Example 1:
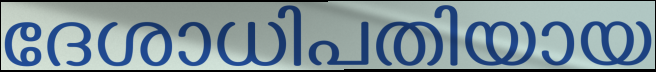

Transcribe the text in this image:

ദേശാധിപതിയായ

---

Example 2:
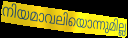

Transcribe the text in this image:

നിയമാവലിയൊന്നുമില്ല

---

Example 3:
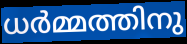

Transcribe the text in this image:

ധർമ്മത്തിനു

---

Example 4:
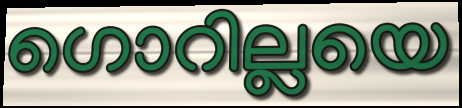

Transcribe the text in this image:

ഗൊറില്ലയെ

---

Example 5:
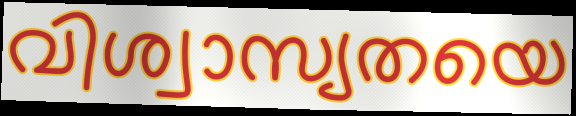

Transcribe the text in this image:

വിശ്വാസ്യതയെ